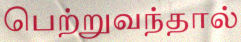
பெற்றுவந்தால்